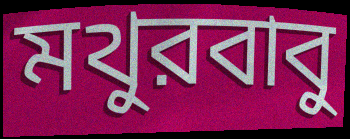
মথুরবাবু